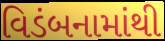
વિડંબનામાંથી